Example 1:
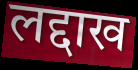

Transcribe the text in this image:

लद्दाख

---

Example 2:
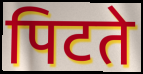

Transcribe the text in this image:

पिटते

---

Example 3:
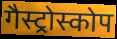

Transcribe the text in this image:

गैस्ट्रोस्कोप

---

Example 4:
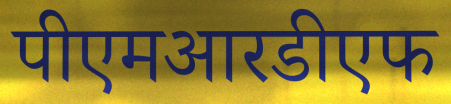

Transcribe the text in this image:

पीएमआरडीएफ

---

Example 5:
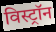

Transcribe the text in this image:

विस्ट्रॉन